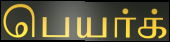
பெயர்க்